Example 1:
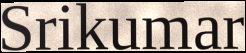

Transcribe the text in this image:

Srikumar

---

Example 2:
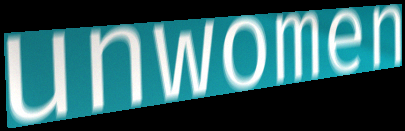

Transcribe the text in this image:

unwomen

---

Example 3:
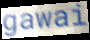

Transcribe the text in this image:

gawai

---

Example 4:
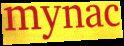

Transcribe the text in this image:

mynac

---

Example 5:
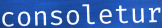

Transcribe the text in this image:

consoletur